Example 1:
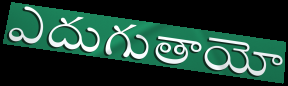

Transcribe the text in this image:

ఎదుగుతాయో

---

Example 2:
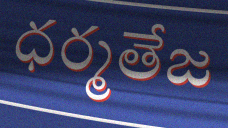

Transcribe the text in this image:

ధర్మతేజ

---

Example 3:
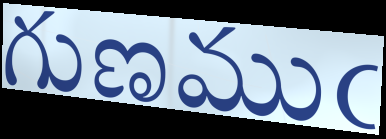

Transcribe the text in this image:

గుణముఁ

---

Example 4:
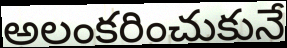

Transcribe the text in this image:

అలంకరించుకునే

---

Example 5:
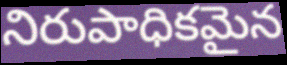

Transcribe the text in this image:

నిరుపాధికమైన